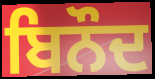
ਬਿਨੌਦ